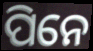
ପିନେ